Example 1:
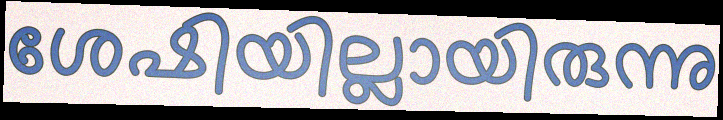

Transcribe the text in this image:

ശേഷിയില്ലായിരുന്നു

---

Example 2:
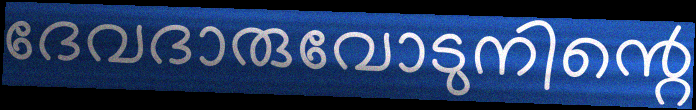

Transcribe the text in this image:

ദേവദാരുവോടുനിന്റെ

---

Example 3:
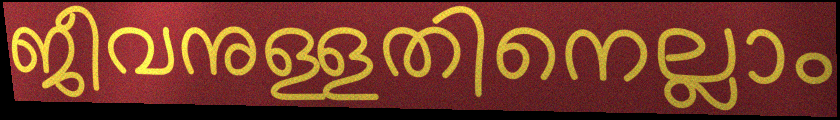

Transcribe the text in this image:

ജീവനുള്ളതിനെല്ലാം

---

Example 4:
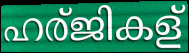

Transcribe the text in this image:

ഹര്ജികള്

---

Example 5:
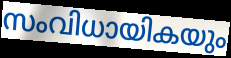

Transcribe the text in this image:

സംവിധായികയും